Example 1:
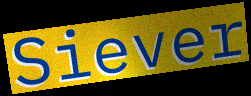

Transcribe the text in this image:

Siever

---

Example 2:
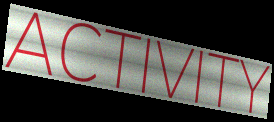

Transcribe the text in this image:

ACTIVITY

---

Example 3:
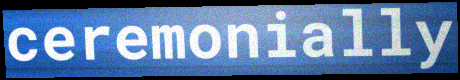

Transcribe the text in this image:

ceremonially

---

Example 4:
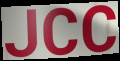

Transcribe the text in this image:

JCC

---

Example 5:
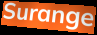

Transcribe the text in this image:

Surange